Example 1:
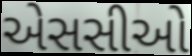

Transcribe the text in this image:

એસસીઓ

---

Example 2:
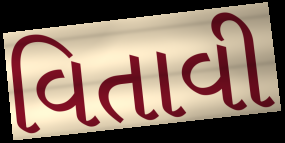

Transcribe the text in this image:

વિતાવી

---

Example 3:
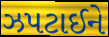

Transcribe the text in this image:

ઝપટાઈને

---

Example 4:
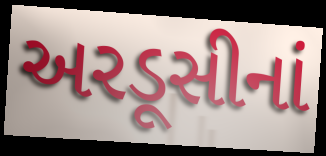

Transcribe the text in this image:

અરડૂસીનાં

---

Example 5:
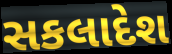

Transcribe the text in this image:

સકલાદેશ